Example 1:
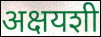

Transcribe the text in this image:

अक्षयशी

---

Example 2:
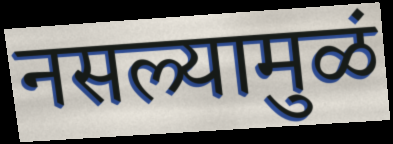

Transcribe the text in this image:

नसल्यामुळं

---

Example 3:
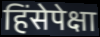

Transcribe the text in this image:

हिंसेपेक्षा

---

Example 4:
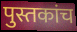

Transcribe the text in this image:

पुस्तकांच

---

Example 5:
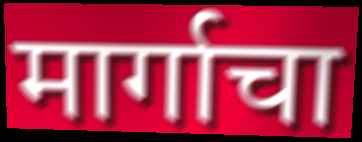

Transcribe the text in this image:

मार्गाचा